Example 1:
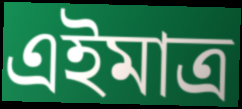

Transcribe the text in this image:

এইমাত্ৰ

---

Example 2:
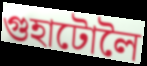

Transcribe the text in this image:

গুহাটোলৈ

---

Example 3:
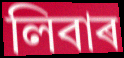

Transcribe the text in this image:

লিবাৰ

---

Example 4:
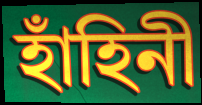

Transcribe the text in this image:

হাঁহিনী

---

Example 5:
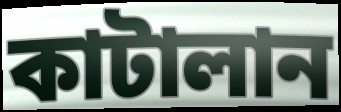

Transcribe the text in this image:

কাটালান